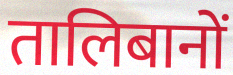
तालिबानों